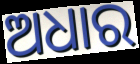
ଅଧାର